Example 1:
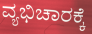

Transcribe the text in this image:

ವ್ಯಭಿಚಾರಕ್ಕೆ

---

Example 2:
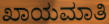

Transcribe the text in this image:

ಖಾಯಮಾತಿ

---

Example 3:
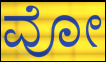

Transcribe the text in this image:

ವೋ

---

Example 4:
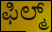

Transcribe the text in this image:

ಫಿಲ್ಮ್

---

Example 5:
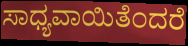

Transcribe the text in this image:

ಸಾಧ್ಯವಾಯಿತೆಂದರೆ